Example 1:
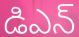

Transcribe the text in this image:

డిఎన్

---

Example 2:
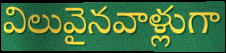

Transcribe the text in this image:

విలువైనవాళ్లుగా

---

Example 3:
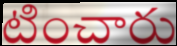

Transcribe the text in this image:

టించారు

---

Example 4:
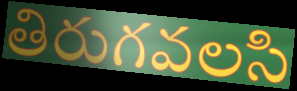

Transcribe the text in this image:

తిరుగవలసి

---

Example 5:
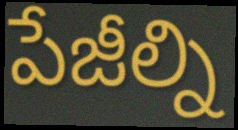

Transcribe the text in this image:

పేజీల్ని